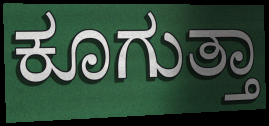
ಕೂಗುತ್ತಾ